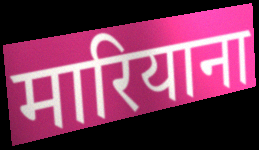
मारियाना